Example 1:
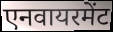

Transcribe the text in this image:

एनवायरमेंट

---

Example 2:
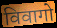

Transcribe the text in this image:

विवागो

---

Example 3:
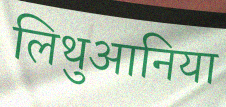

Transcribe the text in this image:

लिथुआनिया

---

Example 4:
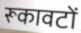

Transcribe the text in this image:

रूकावटों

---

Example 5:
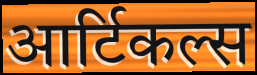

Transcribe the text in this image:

आर्टिकल्स